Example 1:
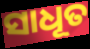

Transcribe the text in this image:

ସାଧୂତ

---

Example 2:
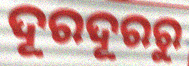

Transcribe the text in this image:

ଦୂରଦୂରରୁ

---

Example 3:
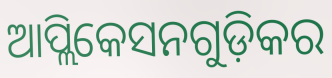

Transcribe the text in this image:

ଆପ୍ଲିକେସନଗୁଡ଼ିକର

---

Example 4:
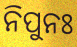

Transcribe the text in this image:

ନିପୁନଃ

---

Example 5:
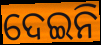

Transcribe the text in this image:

ଦେଇନି